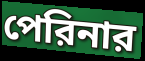
পেরিনার